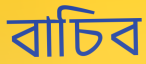
বাচিব